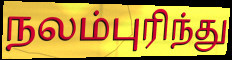
நலம்புரிந்து